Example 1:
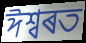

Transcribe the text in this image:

ঈশ্বৰত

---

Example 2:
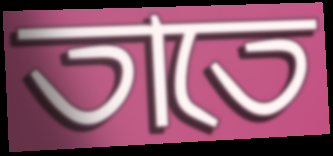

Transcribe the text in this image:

তাতে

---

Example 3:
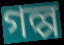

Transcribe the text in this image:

গল্প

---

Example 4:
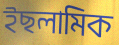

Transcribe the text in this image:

ইছলামিক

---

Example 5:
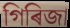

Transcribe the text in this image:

গিৰিজা